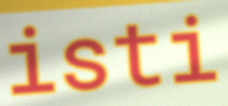
isti